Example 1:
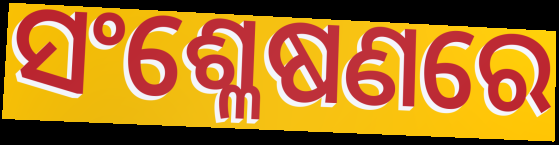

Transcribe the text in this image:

ସଂଶ୍ଳେଷଣରେ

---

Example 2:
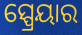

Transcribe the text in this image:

ସ୍ପ୍ରେୟାର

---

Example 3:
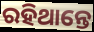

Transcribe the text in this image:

ରହିଥାନ୍ତେ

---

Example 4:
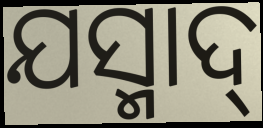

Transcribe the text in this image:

ଯସ୍ମାଦ୍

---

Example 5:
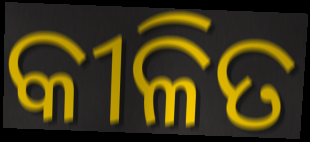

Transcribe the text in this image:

କୀଳିତ